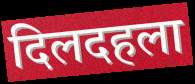
दिलदहला